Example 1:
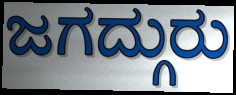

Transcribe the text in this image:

ಜಗದ್ಗುರು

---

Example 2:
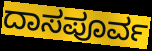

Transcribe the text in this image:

ದಾಸಪೂರ್ವ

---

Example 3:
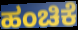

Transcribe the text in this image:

ಹಂಚಿಕೆ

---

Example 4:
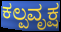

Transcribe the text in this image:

ಕಲ್ಪವೃಕ್ಷ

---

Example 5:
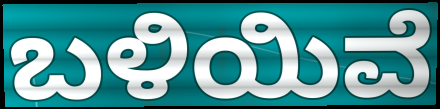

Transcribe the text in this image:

ಬಳಿಯಿವೆ